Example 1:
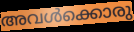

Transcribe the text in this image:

അവൾക്കൊരു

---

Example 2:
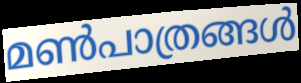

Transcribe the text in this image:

മൺപാത്രങ്ങൾ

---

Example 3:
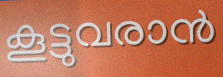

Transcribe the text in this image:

കൂട്ടുവരാൻ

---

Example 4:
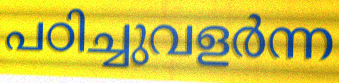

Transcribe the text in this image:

പഠിച്ചുവളർന്ന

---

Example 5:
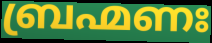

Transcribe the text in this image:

ബ്രഹ്മണഃ